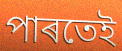
পাৰতেই